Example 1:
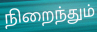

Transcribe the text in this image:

நிறைந்தும்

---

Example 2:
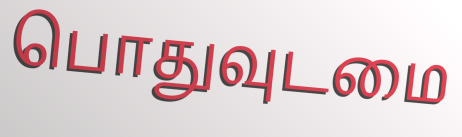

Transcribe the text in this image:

பொதுவுடமை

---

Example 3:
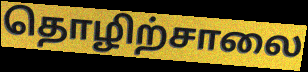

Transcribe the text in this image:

தொழிற்சாலை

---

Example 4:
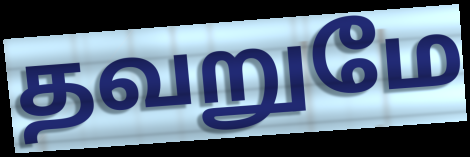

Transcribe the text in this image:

தவறுமே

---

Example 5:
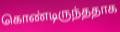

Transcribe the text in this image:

கொண்டிருந்ததாக